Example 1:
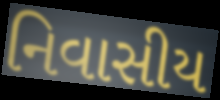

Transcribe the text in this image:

નિવાસીય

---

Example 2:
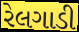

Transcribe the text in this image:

રેલગાડી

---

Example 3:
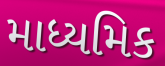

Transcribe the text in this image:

માધ્યમિક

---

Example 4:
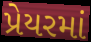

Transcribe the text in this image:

પ્રેયરમાં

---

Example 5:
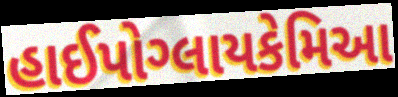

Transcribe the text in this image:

હાઈપોગ્લાયકેમિઆ